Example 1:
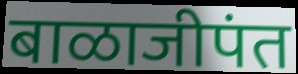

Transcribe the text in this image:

बाळाजीपंत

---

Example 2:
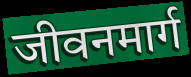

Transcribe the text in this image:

जीवनमार्ग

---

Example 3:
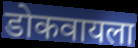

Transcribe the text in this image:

डोकवायला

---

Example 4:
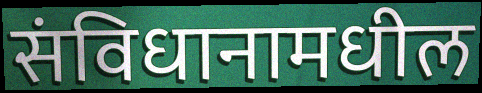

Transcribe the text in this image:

संविधानामधील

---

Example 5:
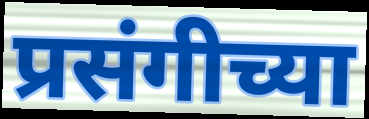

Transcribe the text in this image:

प्रसंगीच्या